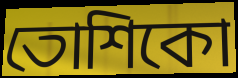
তোশিকো